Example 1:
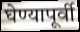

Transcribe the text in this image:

घेण्यापूर्वी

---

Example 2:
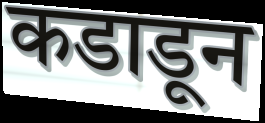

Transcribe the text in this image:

कडाडून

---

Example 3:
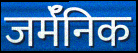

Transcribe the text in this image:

जर्मॅनिक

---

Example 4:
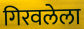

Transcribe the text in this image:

गिरवलेला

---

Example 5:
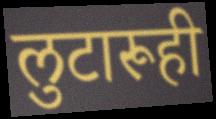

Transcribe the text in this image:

लुटारूही